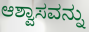
ಆಶ್ವಾಸವನ್ನು